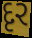
દૃર